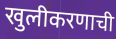
खुलीकरणाची